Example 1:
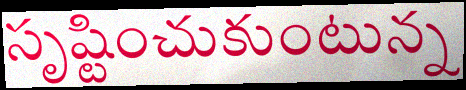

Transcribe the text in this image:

సృష్టించుకుంటున్న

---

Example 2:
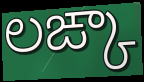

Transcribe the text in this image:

లఙ్కా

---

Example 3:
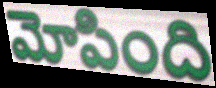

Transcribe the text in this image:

మోపింది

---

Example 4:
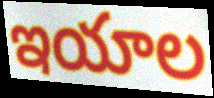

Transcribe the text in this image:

ఇయాల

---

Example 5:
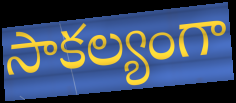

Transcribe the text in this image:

సాకల్యంగా